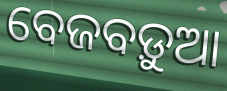
ବେଜବଡ଼ୁଆ